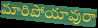
మారిపోయావురా